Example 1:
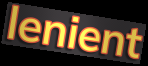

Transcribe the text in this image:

lenient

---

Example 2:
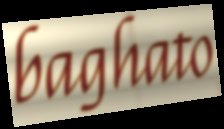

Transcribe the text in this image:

baghato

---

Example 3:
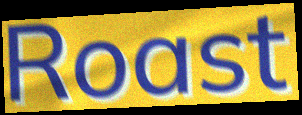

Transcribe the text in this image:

Roast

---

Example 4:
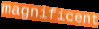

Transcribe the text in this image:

magnificent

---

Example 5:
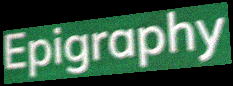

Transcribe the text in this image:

Epigraphy